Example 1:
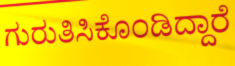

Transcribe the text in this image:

ಗುರುತಿಸಿಕೊಂಡಿದ್ದಾರೆ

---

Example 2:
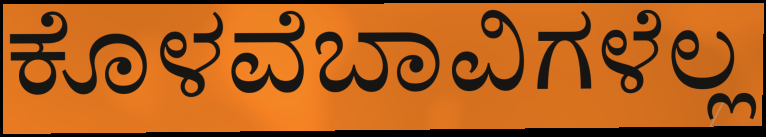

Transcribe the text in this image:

ಕೊಳವೆಬಾವಿಗಳೆಲ್ಲ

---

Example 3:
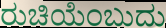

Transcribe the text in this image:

ರುಚಿಯೆಂಬುದು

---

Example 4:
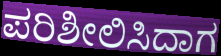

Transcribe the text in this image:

ಪರಿಶೀಲಿಸಿದಾಗ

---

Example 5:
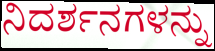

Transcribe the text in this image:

ನಿದರ್ಶನಗಳನ್ನು